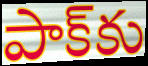
పాక్‌కు